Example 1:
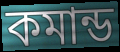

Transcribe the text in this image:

কমান্ড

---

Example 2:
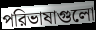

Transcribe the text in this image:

পরিভাষাগুলো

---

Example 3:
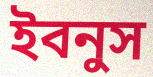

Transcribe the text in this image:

ইবনুস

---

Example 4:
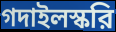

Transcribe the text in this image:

গদাইলস্করি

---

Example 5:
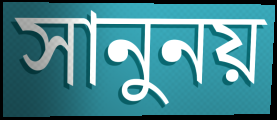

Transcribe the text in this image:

সানুনয়